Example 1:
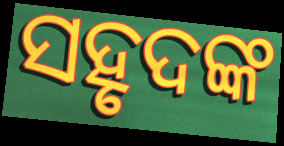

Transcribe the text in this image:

ସହୃଦଙ୍କ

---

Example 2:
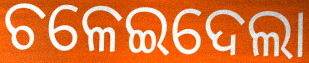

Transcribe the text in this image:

ଚଳେଇଦେଲା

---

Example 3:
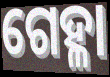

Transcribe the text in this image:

ଗେହ୍ଳା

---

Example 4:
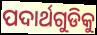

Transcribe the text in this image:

ପଦାର୍ଥଗୁଡିକୁ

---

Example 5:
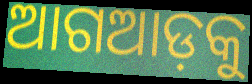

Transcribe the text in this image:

ଆଗଆଡ଼କୁ